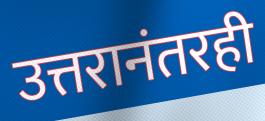
उत्तरानंतरही